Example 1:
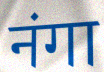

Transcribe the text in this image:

नंगा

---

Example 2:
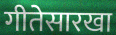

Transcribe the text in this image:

गीतेसारखा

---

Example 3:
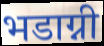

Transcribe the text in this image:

भडाग्नी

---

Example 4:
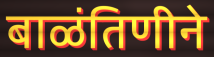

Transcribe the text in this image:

बाळंतिणीने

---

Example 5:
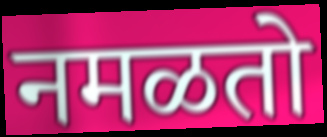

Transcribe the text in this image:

नमळतो